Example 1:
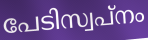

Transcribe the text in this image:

പേടിസ്വപ്നം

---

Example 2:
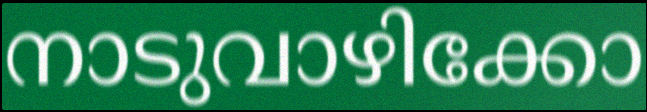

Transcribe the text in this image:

നാടുവാഴിക്കോ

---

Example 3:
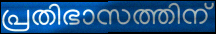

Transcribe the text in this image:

പ്രതിഭാസത്തിന്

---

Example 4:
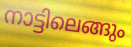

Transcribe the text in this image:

നാട്ടിലെങ്ങും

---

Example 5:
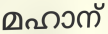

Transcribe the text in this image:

മഹാന്